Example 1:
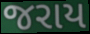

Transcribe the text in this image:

જરાય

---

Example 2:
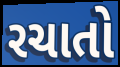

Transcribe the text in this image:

રચાતો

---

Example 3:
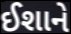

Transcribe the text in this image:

ઈશાને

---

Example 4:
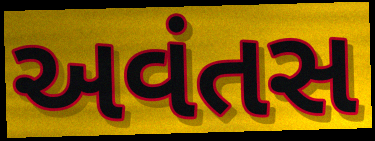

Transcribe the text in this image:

અવંતસ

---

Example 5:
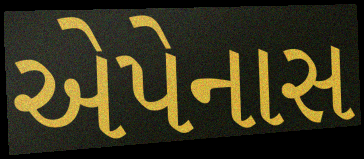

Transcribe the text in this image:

એપેનાસ